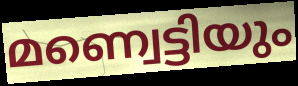
മണ്വെട്ടിയും